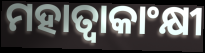
ମହାତ୍ୱାକାଂକ୍ଷୀ